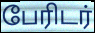
பேரிடர்